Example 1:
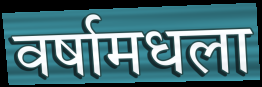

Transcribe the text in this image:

वर्षामधला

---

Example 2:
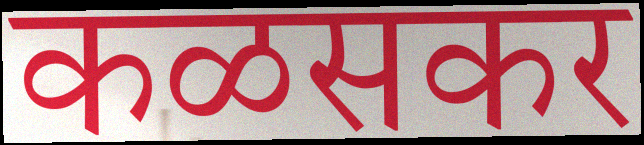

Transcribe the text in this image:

कळसकर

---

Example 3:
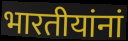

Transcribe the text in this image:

भारतीयांनां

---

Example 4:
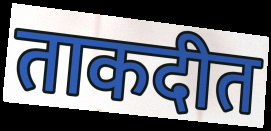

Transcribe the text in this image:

ताकदीत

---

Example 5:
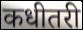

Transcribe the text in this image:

कधीतरी